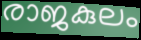
രാജകുലം